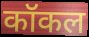
कॉकल